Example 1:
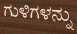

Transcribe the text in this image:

ಗುಳಿಗಳನ್ನು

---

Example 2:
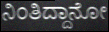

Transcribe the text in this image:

ನಿಂತಿದ್ದಾನೋ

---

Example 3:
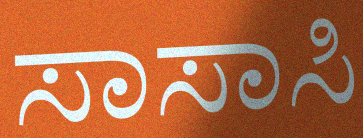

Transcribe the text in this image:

ಸಾಸಾಸಿ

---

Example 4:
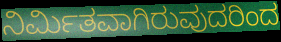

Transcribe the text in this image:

ನಿರ್ಮಿತವಾಗಿರುವುದರಿಂದ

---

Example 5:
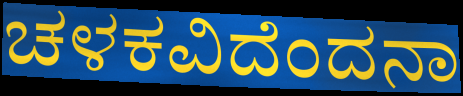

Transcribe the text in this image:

ಚಳಕವಿದೆಂದನಾ